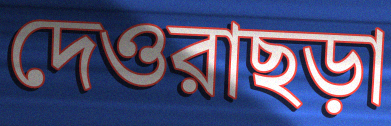
দেওরাছড়া